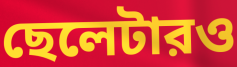
ছেলেটারও